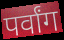
पर्वांग